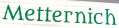
Metternich